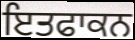
ਇਤਫਾਕਨ